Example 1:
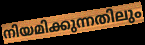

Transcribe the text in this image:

നിയമിക്കുന്നതിലും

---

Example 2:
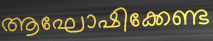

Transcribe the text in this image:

ആഘോഷിക്കേണ്ട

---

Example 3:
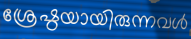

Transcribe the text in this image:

ശ്രേഷ്ഠയായിരുന്നവൾ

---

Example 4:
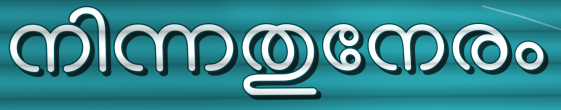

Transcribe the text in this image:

നിന്നതുനേരം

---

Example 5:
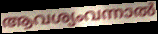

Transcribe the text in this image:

ആവശ്യംവന്നാൽ